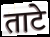
ताटे